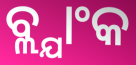
ବ୍ଲ୍ଯାଂକ